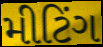
મીટિંગ